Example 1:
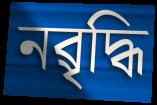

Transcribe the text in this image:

নৱৃদ্ধি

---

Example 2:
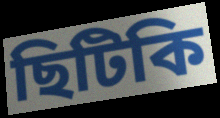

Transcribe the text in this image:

ছিটিকি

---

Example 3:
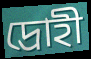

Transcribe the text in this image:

দ্ৰোহী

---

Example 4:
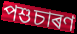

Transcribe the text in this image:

পশুচাৰণ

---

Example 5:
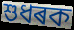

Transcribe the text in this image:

শুধৰক